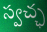
స్వచ్ఛ